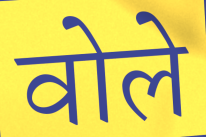
वोले